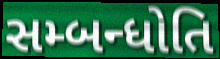
સમ્બન્ધોતિ